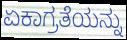
ಏಕಾಗ್ರತೆಯನ್ನು